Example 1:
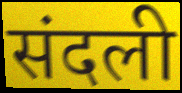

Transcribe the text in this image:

संदली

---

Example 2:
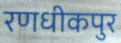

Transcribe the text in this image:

रणधीकपुर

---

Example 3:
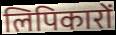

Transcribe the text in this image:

लिपिकारों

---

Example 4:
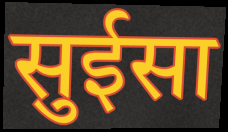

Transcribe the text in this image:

सुईसा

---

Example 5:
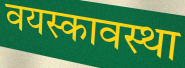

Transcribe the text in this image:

वयस्कावस्था